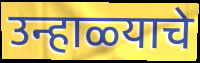
उन्हाळ्याचे